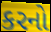
કરનો